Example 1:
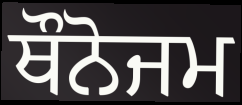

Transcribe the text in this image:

ਥੌਨੋਜਮ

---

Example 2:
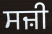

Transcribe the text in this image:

ਸਜ਼ੀ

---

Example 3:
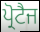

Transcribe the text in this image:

ਪ੍ਰੋਟੈਜ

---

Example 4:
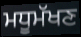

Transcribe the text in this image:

ਮਧੂਮੱਖਣ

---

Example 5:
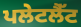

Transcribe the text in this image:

ਪਲੇਟਲੈੱਟ